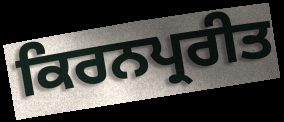
ਕਿਰਨਪ੍ਰਰੀਤ